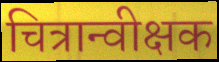
चित्रान्वीक्षक